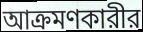
আক্রমণকারীর